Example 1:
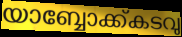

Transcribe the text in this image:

യാബ്ബോക്ക്കടവു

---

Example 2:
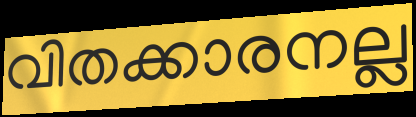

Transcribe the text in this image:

വിതക്കാരനല്ല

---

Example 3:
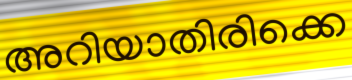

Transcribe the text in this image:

അറിയാതിരിക്കെ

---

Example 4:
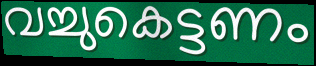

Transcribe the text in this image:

വച്ചുകെട്ടണം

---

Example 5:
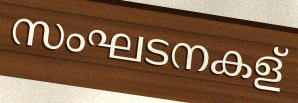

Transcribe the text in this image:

സംഘടനകള്